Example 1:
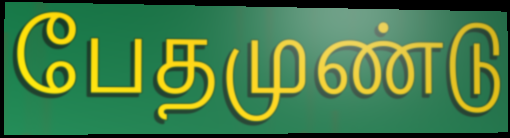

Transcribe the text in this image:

பேதமுண்டு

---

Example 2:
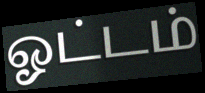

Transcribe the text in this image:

ஓட்டம்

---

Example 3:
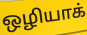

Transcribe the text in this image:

ஒழியாக்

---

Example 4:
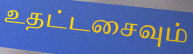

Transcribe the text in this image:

உதட்டசைவும்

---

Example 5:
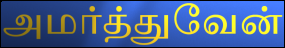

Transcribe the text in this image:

அமர்த்துவேன்